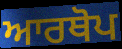
ਆਰਥੋਪ